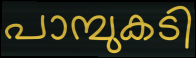
പാമ്പുകടി